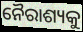
ନୈରାଶ୍ୟକୁ